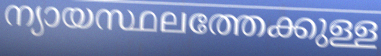
ന്യായസ്ഥലത്തേക്കുള്ള